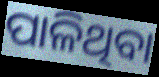
ପାଳିଥିବା